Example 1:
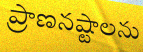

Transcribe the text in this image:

ప్రాణనష్టాలను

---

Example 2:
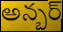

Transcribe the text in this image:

అన్బర్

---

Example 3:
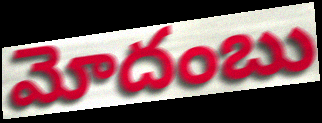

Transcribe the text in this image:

మోదంబు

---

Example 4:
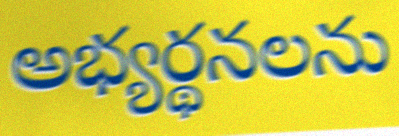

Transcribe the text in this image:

అభ్యర్థనలను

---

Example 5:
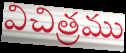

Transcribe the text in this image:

విచిత్రము